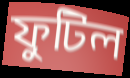
ফুটিল